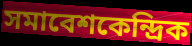
সমাবেশকেন্দ্রিক